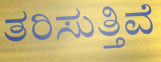
ತರಿಸುತ್ತಿವೆ